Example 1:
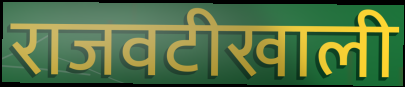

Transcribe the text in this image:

राजवटीखाली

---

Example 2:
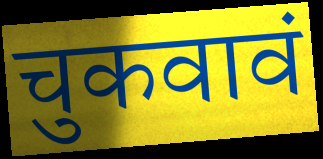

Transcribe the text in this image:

चुकवावं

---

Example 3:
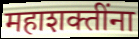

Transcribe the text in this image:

महाशक्तींना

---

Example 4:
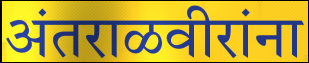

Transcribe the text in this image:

अंतराळवीरांना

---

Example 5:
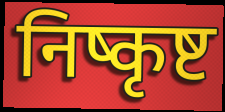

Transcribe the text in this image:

निष्कृष्ट